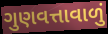
ગુણવત્તાવાળું